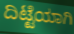
ದಿಟ್ಟೆಯಾಗಿ